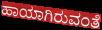
ಹಾಯಾಗಿರುವಂತೆ